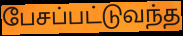
பேசப்பட்டுவந்த